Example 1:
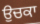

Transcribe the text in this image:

ਉਚਕਾ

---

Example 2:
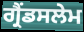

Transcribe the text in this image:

ਗ੍ਰੈਂਡਸਲੇਮ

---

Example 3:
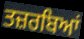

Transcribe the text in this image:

ਤਜ਼ਰਬਿਆਂ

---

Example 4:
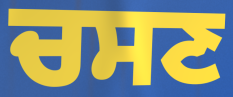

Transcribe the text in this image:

ਚਸਣ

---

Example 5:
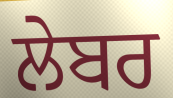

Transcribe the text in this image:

ਲੇਬਰ